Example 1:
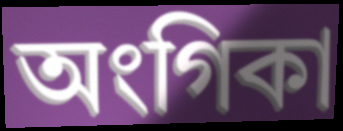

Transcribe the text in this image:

অংগিকা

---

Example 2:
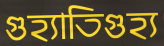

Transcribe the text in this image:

গুহ্যাতিগুহ্য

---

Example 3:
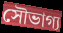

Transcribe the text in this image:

সৌভাগ্য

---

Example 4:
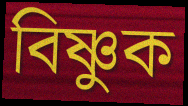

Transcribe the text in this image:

বিষ্ণুক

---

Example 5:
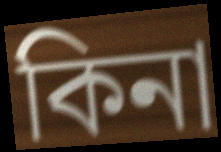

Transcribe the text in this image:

কিনা